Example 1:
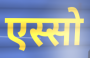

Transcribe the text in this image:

एस्सो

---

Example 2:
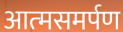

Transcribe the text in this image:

आत्‍मसमर्पण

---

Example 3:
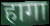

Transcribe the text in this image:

हागा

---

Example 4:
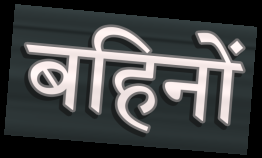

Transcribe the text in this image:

बहिनों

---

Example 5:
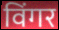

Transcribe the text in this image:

विंगर